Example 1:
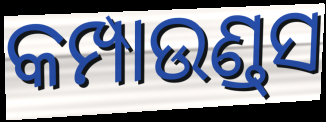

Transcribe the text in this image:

କମ୍ପାଉଣ୍ଡ୍‌ସ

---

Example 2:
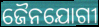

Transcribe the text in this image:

ଜୈନଯୋଗୀ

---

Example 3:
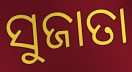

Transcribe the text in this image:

ସୁଜାତା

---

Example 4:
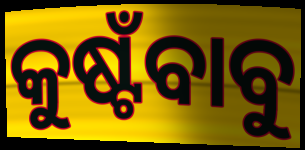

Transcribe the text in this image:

କୁଷ୍ଟଁବାବୁ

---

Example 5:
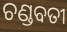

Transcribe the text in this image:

ଚଣ୍ଡବତୀ